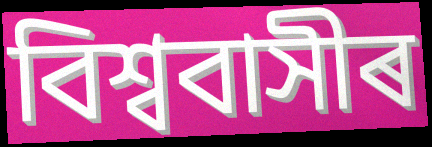
বিশ্ববাসীৰ